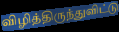
விழித்திருந்துவிட்டு